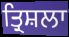
ਤ੍ਰਿਸ਼ਲਾ